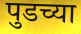
पुडच्या